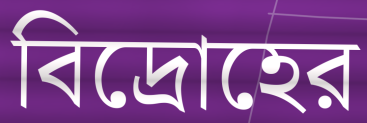
বিদ্রোহের